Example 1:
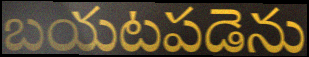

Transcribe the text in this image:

బయటపడెను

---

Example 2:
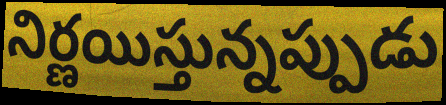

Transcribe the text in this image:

నిర్ణయిస్తున్నప్పుడు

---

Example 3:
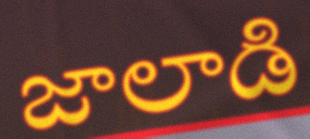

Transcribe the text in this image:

జాలాడి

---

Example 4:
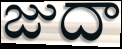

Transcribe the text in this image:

జుదా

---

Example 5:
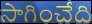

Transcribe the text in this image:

సాగించేది